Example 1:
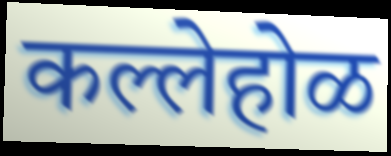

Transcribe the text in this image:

कल्लेहोळ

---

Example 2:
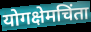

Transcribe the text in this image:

योगक्षेमचिंता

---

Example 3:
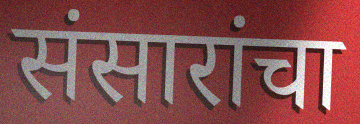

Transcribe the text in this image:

संसारांचा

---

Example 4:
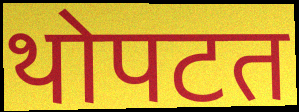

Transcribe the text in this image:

थोपटत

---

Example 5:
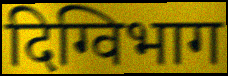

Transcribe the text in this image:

दिग्विभाग